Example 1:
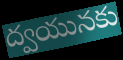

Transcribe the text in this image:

ద్వయునకు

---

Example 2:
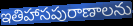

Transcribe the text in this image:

ఇతిహాసపురాణాలను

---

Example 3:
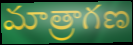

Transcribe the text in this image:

మాత్రాగణ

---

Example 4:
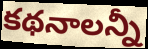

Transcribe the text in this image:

కథనాలన్నీ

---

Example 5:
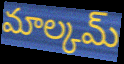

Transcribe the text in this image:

మాల్కమ్